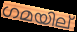
ഗമയില്